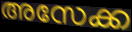
അസേക്ക